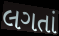
લગતાં